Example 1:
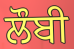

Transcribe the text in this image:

ਲੌਬੀ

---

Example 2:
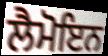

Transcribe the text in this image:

ਲੈਮੋਇਨ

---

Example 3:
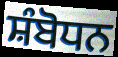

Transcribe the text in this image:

ਸ਼ੰਬੋਧਨ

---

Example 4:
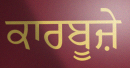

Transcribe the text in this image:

ਕਾਰਬੂਜ਼ੇ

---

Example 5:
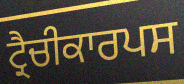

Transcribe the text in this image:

ਟ੍ਰੈਚੀਕਾਰਪਸ